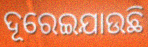
ଦୂରେଇଯାଉଛି